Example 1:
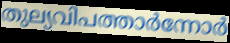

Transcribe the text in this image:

തുല്യവിപത്താർന്നോർ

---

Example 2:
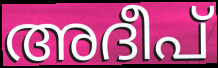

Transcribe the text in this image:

അദീപ്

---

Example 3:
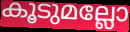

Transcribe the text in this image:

കൂടുമല്ലോ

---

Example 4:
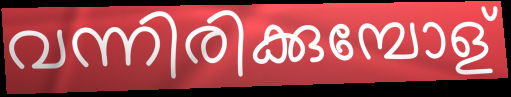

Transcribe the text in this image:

വന്നിരിക്കുമ്പോള്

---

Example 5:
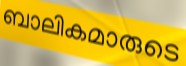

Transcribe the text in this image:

ബാലികമാരുടെ